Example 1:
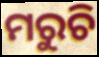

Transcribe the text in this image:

ମରୁଚି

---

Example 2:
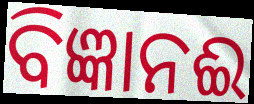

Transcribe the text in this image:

ବିଜ୍ଞାନଈ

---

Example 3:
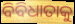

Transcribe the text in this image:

ବିବିଧାତାକୁ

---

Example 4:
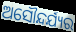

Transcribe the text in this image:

ଅସୌନ୍ଦର୍ଯ୍ୟର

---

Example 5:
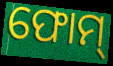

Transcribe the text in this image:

ଫୋମ୍